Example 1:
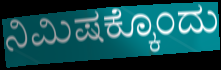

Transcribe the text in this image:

ನಿಮಿಷಕ್ಕೊಂದು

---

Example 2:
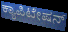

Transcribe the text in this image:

ಕ್ಯಾಪಿಟೇಷನ್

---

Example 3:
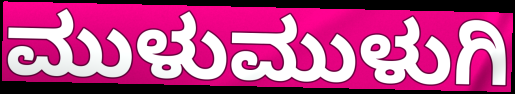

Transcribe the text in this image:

ಮುಳುಮುಳುಗಿ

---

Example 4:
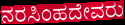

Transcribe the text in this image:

ನರಸಿಂಹದೇವರು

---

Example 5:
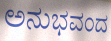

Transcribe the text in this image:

ಅನುಭವಂದ